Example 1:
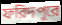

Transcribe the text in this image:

ফরিদপুরে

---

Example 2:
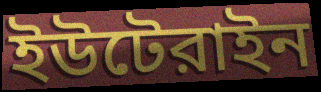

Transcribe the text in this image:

ইউটেরাইন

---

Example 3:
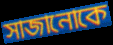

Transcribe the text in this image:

সাজানোকে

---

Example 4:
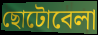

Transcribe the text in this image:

ছোটোবেলা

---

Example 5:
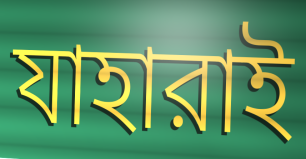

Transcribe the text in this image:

যাহারাই